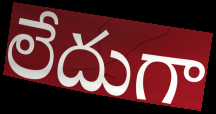
లేదుగా